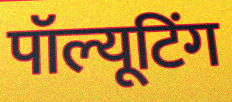
पॉल्यूटिंग